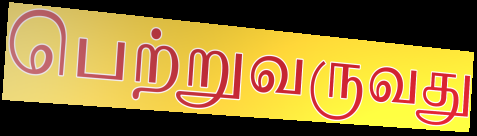
பெற்றுவருவது